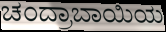
ಚಂದ್ರಾಬಾಯಿಯ